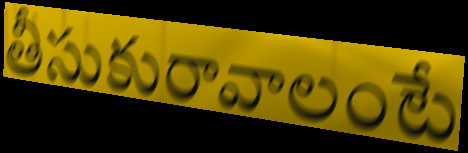
తీసుకురావాలంటే